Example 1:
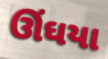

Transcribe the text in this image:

ઊંઘયા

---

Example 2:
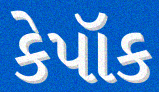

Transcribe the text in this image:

કેપૉક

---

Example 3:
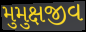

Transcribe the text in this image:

મુમુક્ષજીવ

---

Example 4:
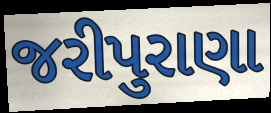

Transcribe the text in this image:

જરીપુરાણા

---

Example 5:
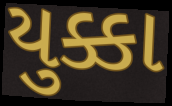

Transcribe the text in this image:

યુક્કા